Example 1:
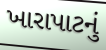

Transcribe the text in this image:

ખારાપાટનું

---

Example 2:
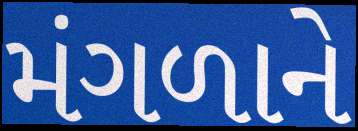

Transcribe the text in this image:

મંગળાને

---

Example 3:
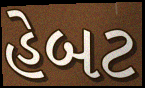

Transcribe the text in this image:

હેબટ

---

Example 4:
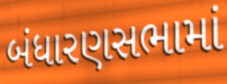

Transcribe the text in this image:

બંધારણસભામાં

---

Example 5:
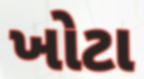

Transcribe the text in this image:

ખોટા